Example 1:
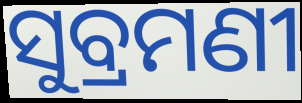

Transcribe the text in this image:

ସୁବ୍ରମଣୀ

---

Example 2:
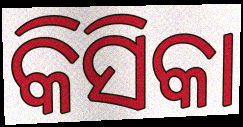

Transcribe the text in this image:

କିସିକା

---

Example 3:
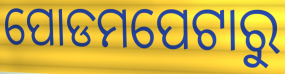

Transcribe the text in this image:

ପୋଡମପେଟାରୁ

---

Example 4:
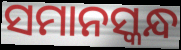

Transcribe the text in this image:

ସମାନସ୍କନ୍ଧ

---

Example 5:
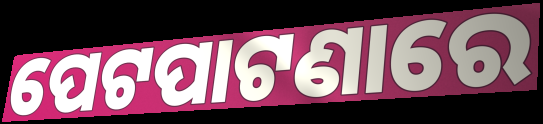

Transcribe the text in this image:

ପେଟପାଟଣାରେ